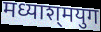
मध्याश्मयुग